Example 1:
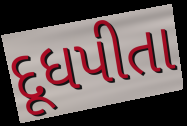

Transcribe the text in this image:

દૂધપીતા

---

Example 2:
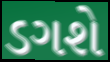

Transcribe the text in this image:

ડગશે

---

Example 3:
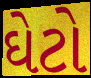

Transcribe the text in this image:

ઘેટો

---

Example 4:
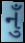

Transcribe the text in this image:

નુઁ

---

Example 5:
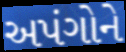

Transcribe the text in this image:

અપંગોને